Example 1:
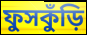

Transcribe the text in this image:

ফুসকুঁড়ি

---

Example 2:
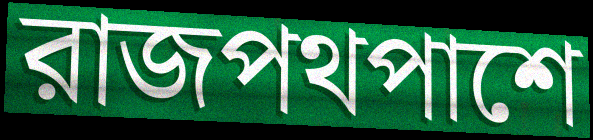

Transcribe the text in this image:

রাজপথপাশে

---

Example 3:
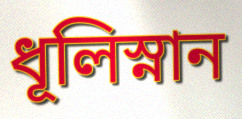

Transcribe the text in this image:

ধূলিস্নান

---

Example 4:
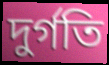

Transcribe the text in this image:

দুর্গতি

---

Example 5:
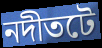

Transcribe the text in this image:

নদীতটে